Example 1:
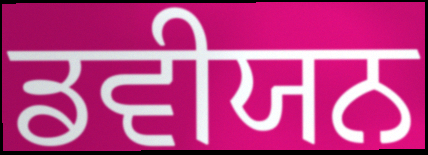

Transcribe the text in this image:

ਡਵੀਯਨ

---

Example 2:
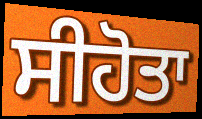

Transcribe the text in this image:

ਸੀਹੋਤਾ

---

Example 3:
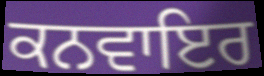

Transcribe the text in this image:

ਕਨਵਾਇਰ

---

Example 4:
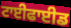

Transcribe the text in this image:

ਟਾਈਫਾਈਡ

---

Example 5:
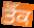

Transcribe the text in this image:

ਤੋੱਕ